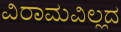
ವಿರಾಮವಿಲ್ಲದ